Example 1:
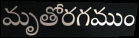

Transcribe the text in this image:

మృతోరగముం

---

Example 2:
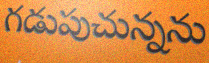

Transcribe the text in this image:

గడుపుచున్నను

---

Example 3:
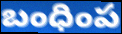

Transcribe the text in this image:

బంధింప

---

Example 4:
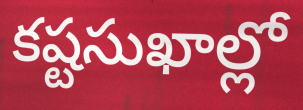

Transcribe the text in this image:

కష్టసుఖాల్లో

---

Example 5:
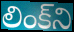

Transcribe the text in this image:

లింక్‌ని